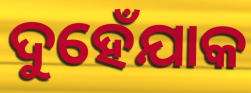
ଦୁହେଁଯାକ